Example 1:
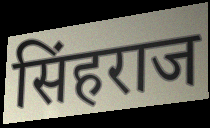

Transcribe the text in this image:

सिंहराज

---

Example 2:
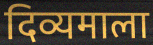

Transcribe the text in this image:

दिव्यमाला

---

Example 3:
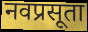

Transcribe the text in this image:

नवप्रसूता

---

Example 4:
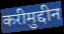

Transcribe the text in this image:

करीमुद्दीन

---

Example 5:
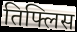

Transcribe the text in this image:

तिफ्लिस